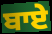
ਬਾਏ